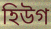
হিউগ